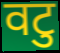
वटु